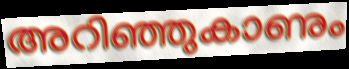
അറിഞ്ഞുകാണും